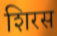
शिरस